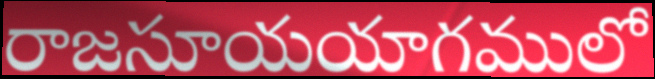
రాజసూయయాగములో